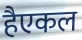
हैएकल